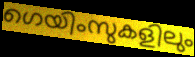
ഗെയിംസുകളിലും